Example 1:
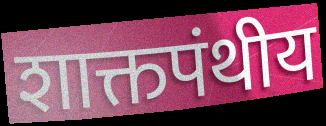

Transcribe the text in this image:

शाक्तपंथीय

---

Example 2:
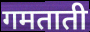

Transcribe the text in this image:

गमताती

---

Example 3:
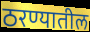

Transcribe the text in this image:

ठरण्यातील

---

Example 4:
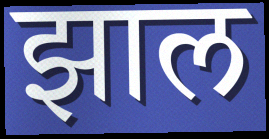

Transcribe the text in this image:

झाल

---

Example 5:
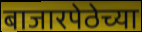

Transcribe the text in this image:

बाजारपेठेच्या